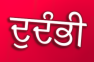
ਦੁਦੰਭੀ